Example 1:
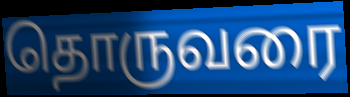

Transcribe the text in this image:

தொருவரை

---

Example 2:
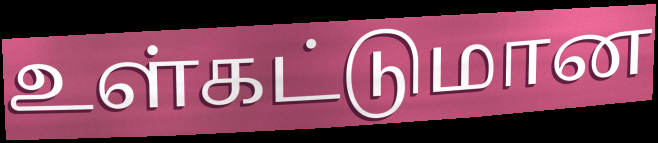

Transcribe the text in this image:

உள்கட்டுமான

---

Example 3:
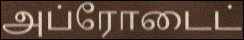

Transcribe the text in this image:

அப்ரோடைட்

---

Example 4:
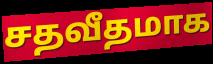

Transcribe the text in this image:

சதவீதமாக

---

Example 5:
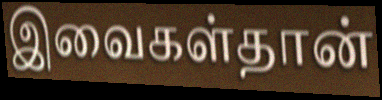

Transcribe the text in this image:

இவைகள்தான்